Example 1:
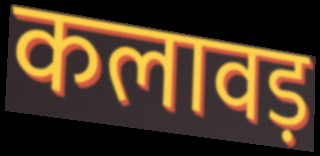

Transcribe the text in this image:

कलावड़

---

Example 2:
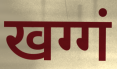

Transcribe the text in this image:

खग्गं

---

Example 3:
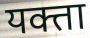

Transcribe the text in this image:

यक्ता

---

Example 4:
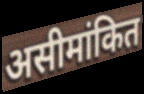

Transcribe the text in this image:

असीमांकित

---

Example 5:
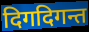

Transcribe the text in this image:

दिगदिगन्त